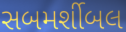
સબમર્શીબલ